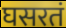
घसरतं